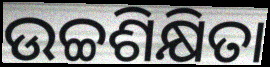
ଉଚ୍ଚଶିକ୍ଷିତା